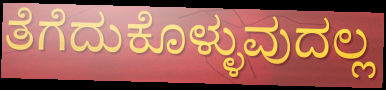
ತೆಗೆದುಕೊಳ್ಳುವುದಲ್ಲ